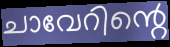
ചാവേറിന്റെ